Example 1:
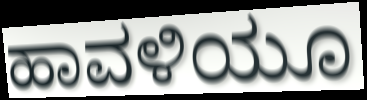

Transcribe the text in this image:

ಹಾವಳಿಯೂ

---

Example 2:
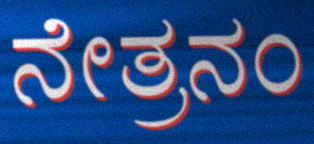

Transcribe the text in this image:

ನೇತ್ರನಂ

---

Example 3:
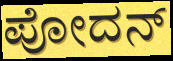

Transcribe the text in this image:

ಪೋದನ್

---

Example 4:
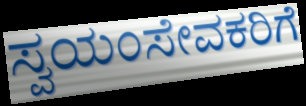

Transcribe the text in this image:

ಸ್ವಯಂಸೇವಕರಿಗೆ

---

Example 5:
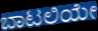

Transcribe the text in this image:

ಬಾಟಲಿಯೇ